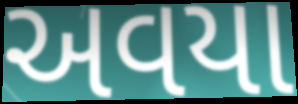
અવયા